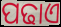
ପଢାଏ